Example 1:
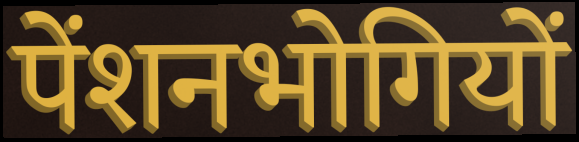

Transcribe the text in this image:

पेंशनभोगियों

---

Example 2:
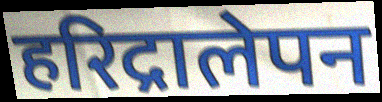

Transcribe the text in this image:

हरिद्रालेपन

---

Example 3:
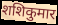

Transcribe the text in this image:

शशिकुमार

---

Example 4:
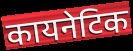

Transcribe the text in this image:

कायनेटिक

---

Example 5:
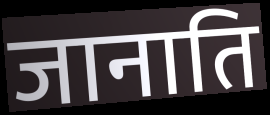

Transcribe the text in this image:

जानाति